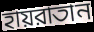
হায়রাতান